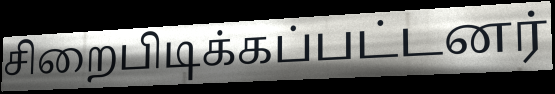
சிறைபிடிக்கப்பட்டனர்